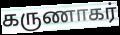
கருணாகர்